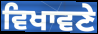
ਵਿਖਾਵਣੇ